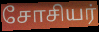
சோசியர்